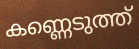
കണ്ണെടുത്ത്